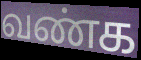
வண்க